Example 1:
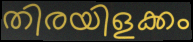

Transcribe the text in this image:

തിരയിളക്കം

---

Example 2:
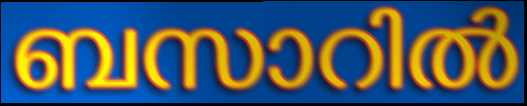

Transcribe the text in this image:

ബസാറിൽ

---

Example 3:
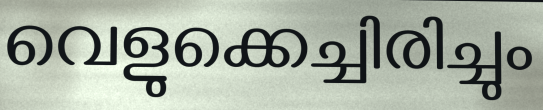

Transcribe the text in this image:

വെളുക്കെച്ചിരിച്ചും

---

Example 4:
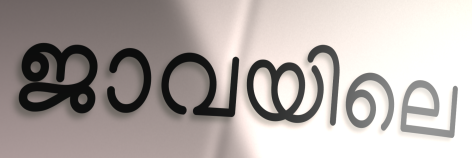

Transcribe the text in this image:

ജാവയിലെ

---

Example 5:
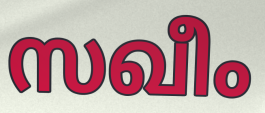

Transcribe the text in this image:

സഖീം